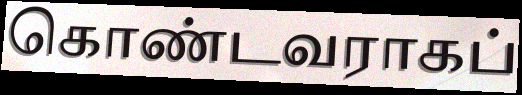
கொண்டவராகப்